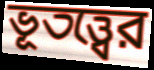
ভূতত্ত্বের